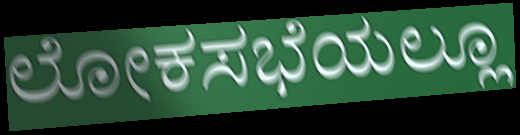
ಲೋಕಸಭೆಯಲ್ಲೂ